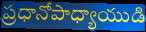
ప్రధానోపాధ్యాయుడి